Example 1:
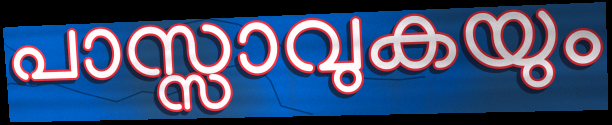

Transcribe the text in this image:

പാസ്സാവുകയും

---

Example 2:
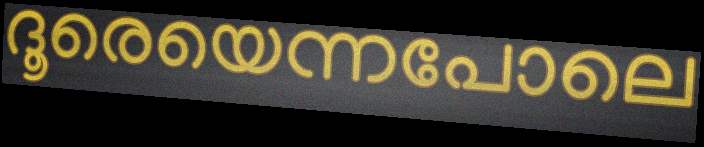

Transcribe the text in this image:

ദൂരെയെന്നപോലെ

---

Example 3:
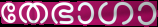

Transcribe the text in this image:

തേഭാഗാ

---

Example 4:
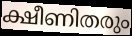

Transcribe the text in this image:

ക്ഷീണിതരും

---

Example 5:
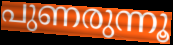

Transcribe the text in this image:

പുണരുന്നൂ